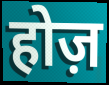
होज़